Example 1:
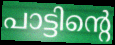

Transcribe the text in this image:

പാട്ടിന്റെ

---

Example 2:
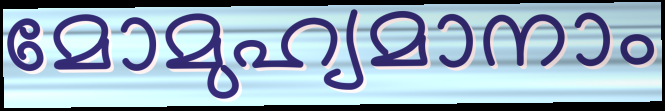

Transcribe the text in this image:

മോമുഹ്യമാനാം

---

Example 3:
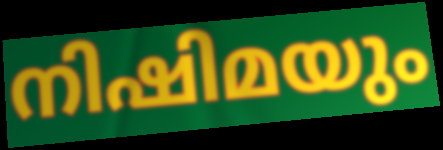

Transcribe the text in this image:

നിഷിമയും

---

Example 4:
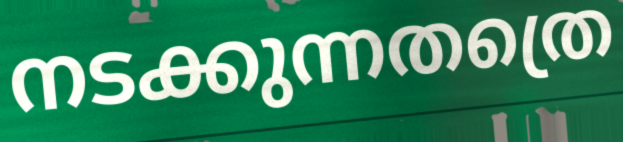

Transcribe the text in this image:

നടക്കുന്നതത്രെ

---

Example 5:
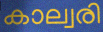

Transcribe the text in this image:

കാല്വരി